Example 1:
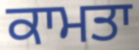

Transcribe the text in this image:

ਕਾਮਤਾ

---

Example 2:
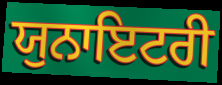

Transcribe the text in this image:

ਯੁਨਾਇਟਰੀ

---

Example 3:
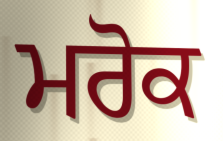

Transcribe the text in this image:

ਮਰੋਕ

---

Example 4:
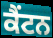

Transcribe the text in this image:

ਕੈਂਟਨ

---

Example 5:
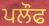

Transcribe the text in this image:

ਪਲੌਫ